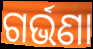
ଗର୍ଭଣା